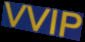
VVIP